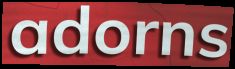
adorns